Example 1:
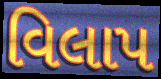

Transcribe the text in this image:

વિલાપ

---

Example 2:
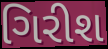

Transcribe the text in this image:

ગિરીશ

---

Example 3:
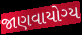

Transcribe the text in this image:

જાણવાયોગ્ય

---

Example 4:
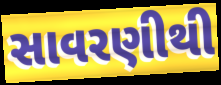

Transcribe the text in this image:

સાવરણીથી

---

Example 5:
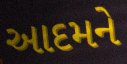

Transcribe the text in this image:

આદમને